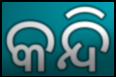
କନ୍ଦି